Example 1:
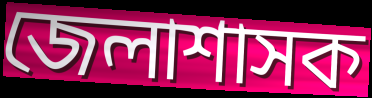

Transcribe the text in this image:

জেলাশাসক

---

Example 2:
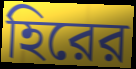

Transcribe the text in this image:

হিরের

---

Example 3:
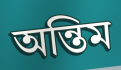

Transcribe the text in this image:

অন্তিম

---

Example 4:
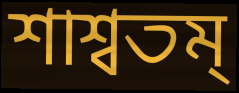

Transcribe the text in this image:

শাশ্বতম্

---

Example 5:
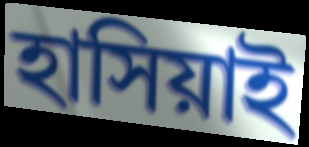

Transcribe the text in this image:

হাসিয়াই